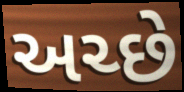
અચ્છે